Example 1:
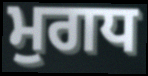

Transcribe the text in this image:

ਮੁਗਧ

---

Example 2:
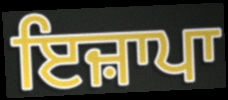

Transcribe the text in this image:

ਇਜ਼ਾਪਾ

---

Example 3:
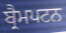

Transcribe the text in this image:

ਬ੍ਰੈਮਪਟਨ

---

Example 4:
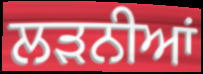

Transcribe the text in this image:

ਲੜਨੀਆਂ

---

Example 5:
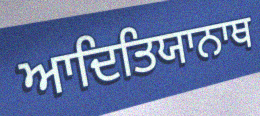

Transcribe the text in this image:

ਆਦਿਤਿਯਾਨਾਥ